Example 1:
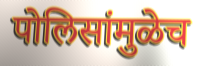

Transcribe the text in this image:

पोलिसांमुळेच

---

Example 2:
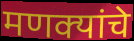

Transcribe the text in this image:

मणक्यांचे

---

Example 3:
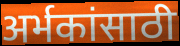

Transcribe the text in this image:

अर्भकांसाठी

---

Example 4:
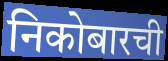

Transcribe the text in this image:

निकोबारची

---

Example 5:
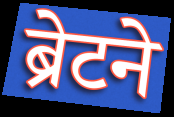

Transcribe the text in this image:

ब्रेटने